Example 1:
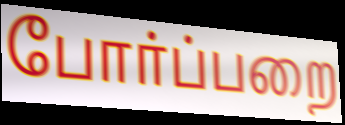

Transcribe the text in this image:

போர்ப்பறை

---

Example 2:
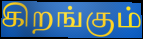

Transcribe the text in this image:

கிறங்கும்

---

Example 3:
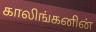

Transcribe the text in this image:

காலிங்கனின்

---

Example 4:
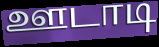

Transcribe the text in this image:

ஊடாடி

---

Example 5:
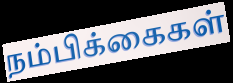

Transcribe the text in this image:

நம்பிக்கைகள்